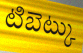
టిబెట్కు